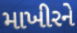
માખીરને